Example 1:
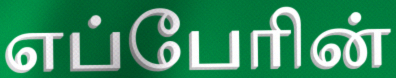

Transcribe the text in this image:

எப்பேரின்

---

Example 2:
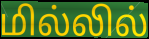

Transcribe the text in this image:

மில்லில்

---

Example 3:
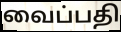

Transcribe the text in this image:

வைப்பதி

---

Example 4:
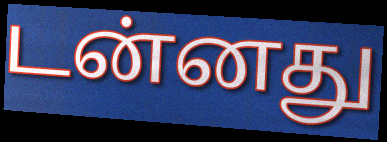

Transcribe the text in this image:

டன்னது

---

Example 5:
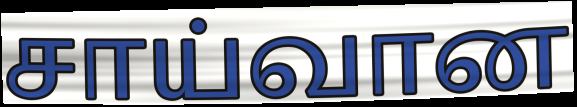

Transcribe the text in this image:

சாய்வான